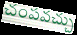
చంపవచ్చు